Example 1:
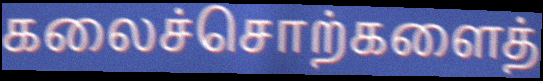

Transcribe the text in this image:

கலைச்சொற்களைத்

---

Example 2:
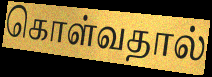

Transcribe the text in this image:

கொள்வதால்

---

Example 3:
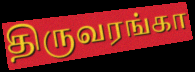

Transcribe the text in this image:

திருவரங்கா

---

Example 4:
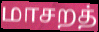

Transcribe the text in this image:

மாசறத்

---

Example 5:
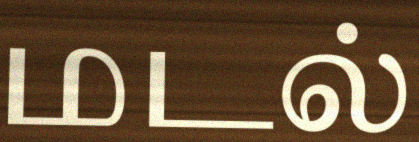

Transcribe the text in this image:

மடல்